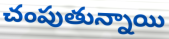
చంపుతున్నాయి